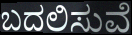
ಬದಲಿಸುವೆ